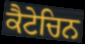
ਕੈਟੇਚਿਨ